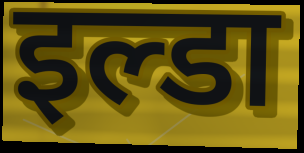
इल्डा